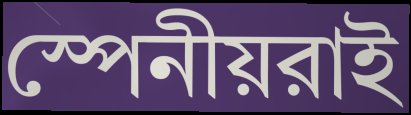
স্পেনীয়রাই